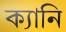
ক্যানি